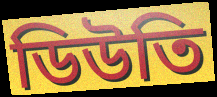
ডিউতি